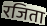
रजिता